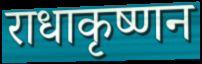
राधाकृष्णन